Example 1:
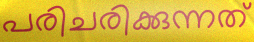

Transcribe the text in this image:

പരിചരിക്കുന്നത്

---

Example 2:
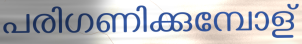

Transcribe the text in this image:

പരിഗണിക്കുമ്പോള്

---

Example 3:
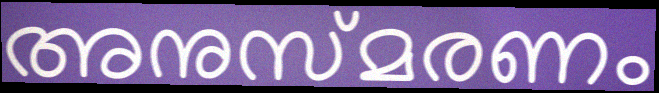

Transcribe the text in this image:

അനുസ്മരണം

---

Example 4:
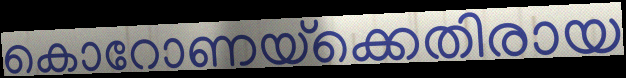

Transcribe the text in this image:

കൊറോണയ്‌ക്കെതിരായ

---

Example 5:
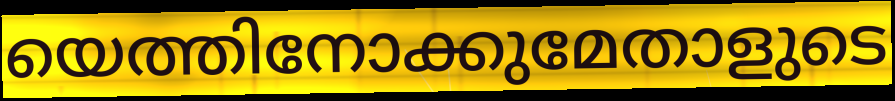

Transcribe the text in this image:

യെത്തിനോക്കുമേതാളുടെ